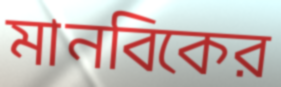
মানবিকের